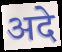
अदे